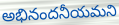
అభినందనీయమని